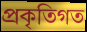
প্ৰকৃতিগত